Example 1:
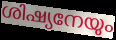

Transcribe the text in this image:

ശിഷ്യനേയും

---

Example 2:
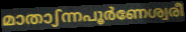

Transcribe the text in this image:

മാതാഽന്നപൂർണേശ്വരീ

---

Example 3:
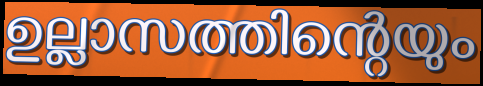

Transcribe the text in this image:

ഉല്ലാസത്തിന്റെയും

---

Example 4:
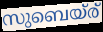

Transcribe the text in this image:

സുബെയ്ര്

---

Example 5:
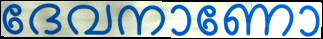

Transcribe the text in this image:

ദേവനാണോ